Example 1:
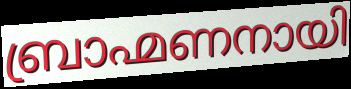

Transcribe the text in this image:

ബ്രാഹ്മണനായി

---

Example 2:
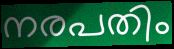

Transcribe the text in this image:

നരപതിം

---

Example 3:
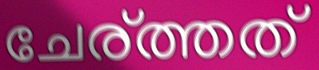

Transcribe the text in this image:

ചേര്ത്തത്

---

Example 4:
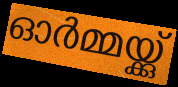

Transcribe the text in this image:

ഓർമ്മയ്ക്കു്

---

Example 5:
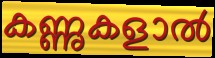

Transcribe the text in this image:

കണ്ണുകളാൽ